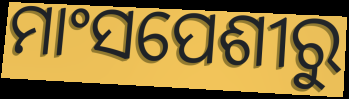
ମାଂସପେଶୀରୁ